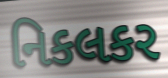
નિકલકર